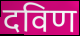
दविण